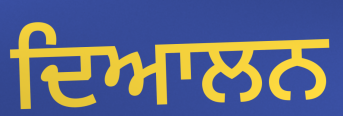
ਦਿਆਲਨ